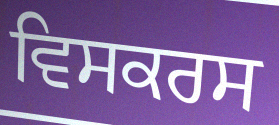
ਵਿਸਕਰਸ